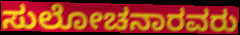
ಸುಲೋಚನಾರವರು